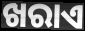
ଖରାଏ